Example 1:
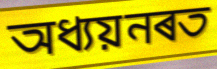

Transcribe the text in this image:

অধ্যয়নৰত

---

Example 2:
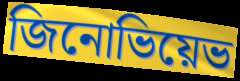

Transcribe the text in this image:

জিনোভিয়েভ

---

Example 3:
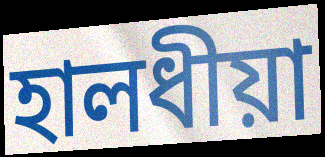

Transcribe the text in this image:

হালধীয়া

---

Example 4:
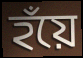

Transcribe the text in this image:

হঁয়ে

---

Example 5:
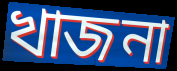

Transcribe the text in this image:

খাজনা